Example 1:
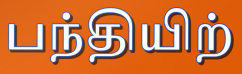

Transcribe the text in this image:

பந்தியிற்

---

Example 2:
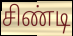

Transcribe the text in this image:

சிண்டி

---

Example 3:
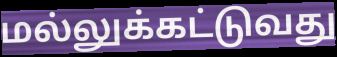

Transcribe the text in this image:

மல்லுக்கட்டுவது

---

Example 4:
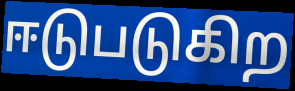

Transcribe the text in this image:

ஈடுபடுகிற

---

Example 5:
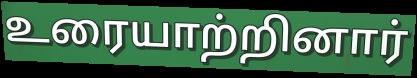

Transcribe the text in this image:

உரையாற்றினார்